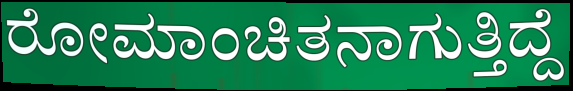
ರೋಮಾಂಚಿತನಾಗುತ್ತಿದ್ದೆ